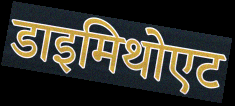
डाइमिथोएट